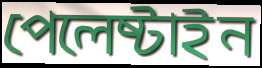
পেলেষ্টাইন